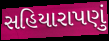
સહિયારાપણું